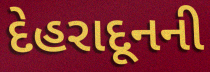
દેહરાદૂનની